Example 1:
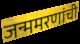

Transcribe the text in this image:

जन्ममरणांची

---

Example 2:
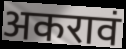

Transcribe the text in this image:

अकरावं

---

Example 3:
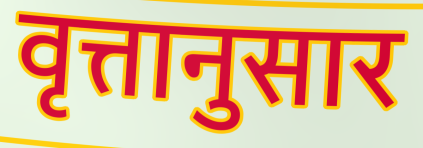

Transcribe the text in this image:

वृत्तानुसार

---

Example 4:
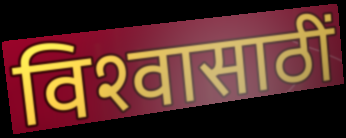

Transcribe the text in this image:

विश्वासाठीं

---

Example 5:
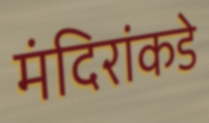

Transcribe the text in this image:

मंदिरांकडे